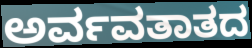
ಅರ್ವವತಾತದ